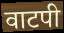
वाटपी